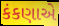
કંકણાએ